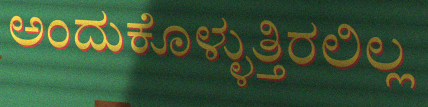
ಅಂದುಕೊಳ್ಳುತ್ತಿರಲಿಲ್ಲ